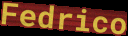
Fedrico